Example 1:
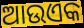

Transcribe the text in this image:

ଆଉଏକ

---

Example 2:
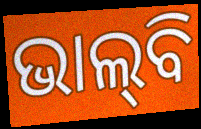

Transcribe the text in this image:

ଭାଲ୍‌ବି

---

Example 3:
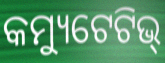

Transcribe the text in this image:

କମ୍ୟୁଟେଟିଭ୍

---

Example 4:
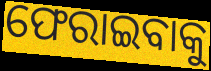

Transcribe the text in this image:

ଫେରାଇବାକୁ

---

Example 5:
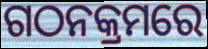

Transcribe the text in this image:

ଗଠନକ୍ରମରେ